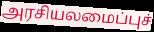
அரசியலமைப்புச்